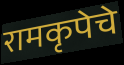
रामकृपेचे